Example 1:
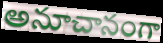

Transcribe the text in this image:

అనూచానంగా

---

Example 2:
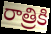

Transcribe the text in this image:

రాత్రికి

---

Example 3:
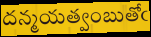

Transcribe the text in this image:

దన్మయత్వంబుతోఁ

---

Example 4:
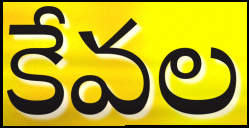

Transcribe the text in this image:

కేవల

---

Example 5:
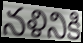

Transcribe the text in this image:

నళినికి